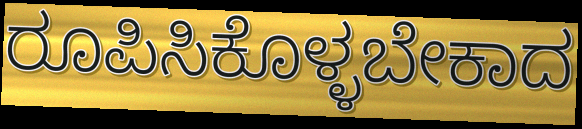
ರೂಪಿಸಿಕೊಳ್ಳಬೇಕಾದ